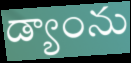
డ్యాంను